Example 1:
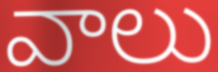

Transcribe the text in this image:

వాలు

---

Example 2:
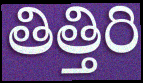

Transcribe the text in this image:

తిత్తిరి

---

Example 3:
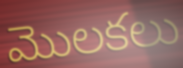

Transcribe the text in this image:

మొలకలు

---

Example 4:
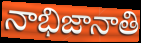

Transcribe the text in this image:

నాభిజానాతి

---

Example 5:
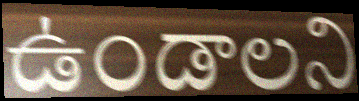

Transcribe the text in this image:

ఉండాలని